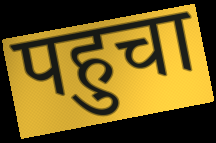
पहुचा